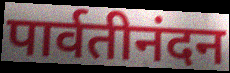
पार्वतीनंदन